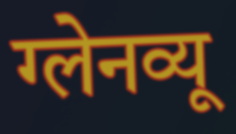
ग्लेनव्यू